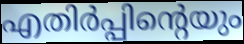
എതിർപ്പിന്റെയും